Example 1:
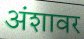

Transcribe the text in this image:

अंशावर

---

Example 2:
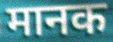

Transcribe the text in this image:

मानक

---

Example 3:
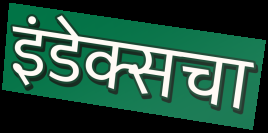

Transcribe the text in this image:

इंडेक्सचा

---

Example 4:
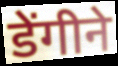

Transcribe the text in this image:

डेंगीने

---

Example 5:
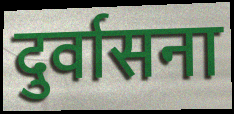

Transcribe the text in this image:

दुर्वासना